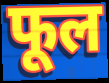
फूल